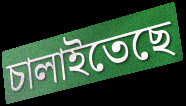
চালাইতেছে